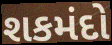
શકમંદો